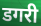
डगरी